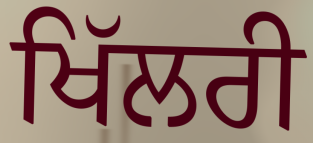
ਖਿੱਲਰੀ